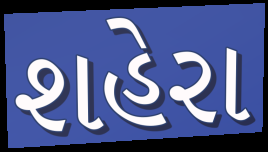
શહેરા